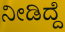
ನೀಡಿದ್ದೆ